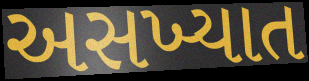
અસખ્યાત